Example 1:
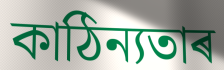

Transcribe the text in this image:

কাঠিন্যতাৰ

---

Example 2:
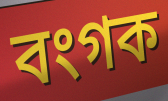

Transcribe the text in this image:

বংগক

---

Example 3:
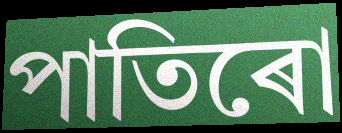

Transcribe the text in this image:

পাতিৰো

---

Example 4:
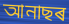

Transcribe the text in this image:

আনাছৰ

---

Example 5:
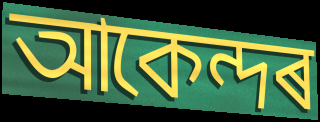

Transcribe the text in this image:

আকেন্দৰ